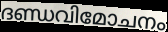
ദണ്ഡവിമോചനം